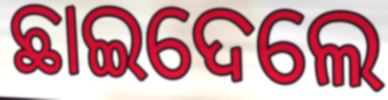
ଛାଇଦେଲେ